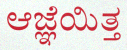
ಆಜ್ಞೆಯಿತ್ತ